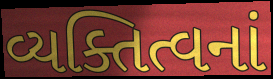
વ્યક્તિત્વનાં